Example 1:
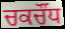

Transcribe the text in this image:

ਚਕਚੌਂਧ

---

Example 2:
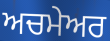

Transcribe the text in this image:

ਅਚਮੇਅਰ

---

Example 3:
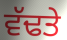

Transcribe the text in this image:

ਵੱਢਤੇ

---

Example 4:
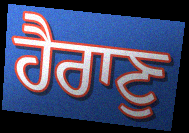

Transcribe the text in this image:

ਹੈਰਾਣੁ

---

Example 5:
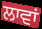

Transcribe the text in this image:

ਲਾਵਾਂ